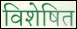
विशेषित